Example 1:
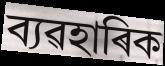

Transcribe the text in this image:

ব্যৱহাৰিক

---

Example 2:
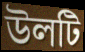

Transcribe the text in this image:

উলটি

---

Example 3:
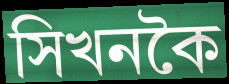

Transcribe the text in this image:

সিখনকৈ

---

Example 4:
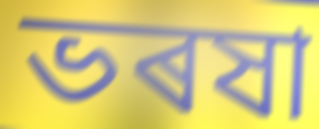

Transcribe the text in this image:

ভৰষা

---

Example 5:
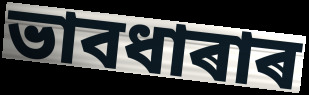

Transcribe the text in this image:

ভাবধাৰাৰ